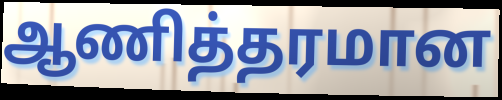
ஆணித்தரமான